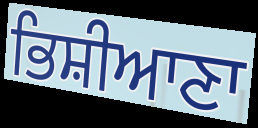
ਭਿਸ਼ੀਆਣਾ